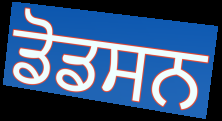
ਡੋਡਸਨ